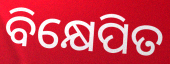
ବିକ୍ଷେପିତ